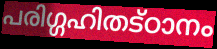
പരിഗ്ഗഹിതട്ഠാനം